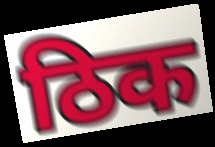
ठिक